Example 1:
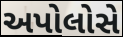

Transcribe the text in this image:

અપોલોસે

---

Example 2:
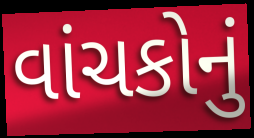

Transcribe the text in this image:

વાંચકોનું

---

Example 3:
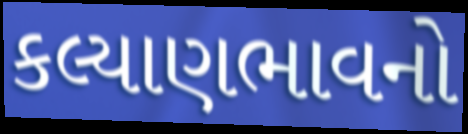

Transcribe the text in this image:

કલ્યાણભાવનો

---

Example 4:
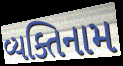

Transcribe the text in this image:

વ્યક્તિનામ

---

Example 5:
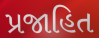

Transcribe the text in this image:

પ્રજાહિત